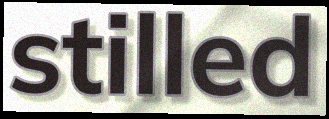
stilled